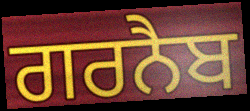
ਗਰਨੈਬ